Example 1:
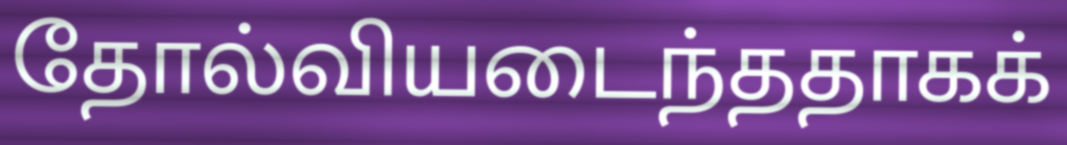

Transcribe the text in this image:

தோல்வியடைந்ததாகக்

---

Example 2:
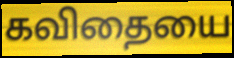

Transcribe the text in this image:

கவிதையை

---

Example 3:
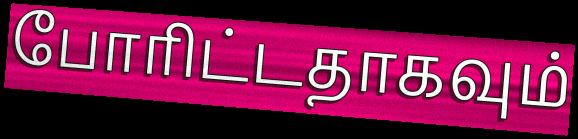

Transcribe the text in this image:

போரிட்டதாகவும்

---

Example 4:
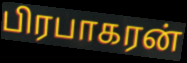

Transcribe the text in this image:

பிரபாகரன்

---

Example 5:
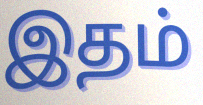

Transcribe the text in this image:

இதம்